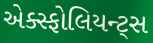
એક્સ્ફોલિયન્ટ્સ